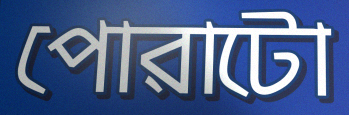
পোৱাটো